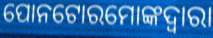
ପୋନଟୋରମୋଙ୍କଦ୍ୱାରା